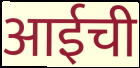
आईची